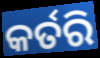
କର୍ତରି